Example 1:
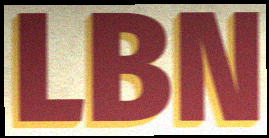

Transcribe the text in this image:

LBN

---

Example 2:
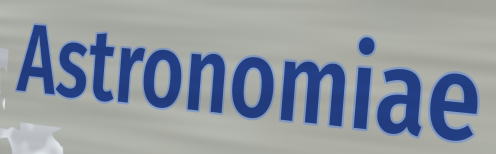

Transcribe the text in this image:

Astronomiae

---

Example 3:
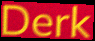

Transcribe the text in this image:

Derk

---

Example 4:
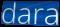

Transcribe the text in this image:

dara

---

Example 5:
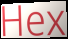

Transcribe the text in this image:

Hex